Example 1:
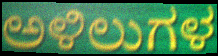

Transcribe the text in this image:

ಅಳಿಲುಗಳ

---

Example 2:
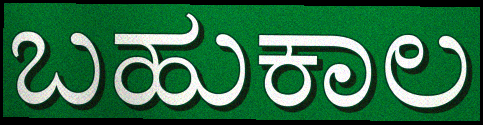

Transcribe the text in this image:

ಬಹುಕಾಲ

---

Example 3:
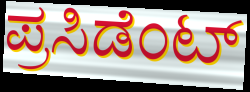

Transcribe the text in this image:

ಪ್ರಸಿಡೆಂಟ್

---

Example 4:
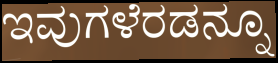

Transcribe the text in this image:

ಇವುಗಳೆರಡನ್ನೂ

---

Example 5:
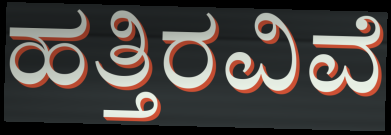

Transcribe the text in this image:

ಹತ್ತಿರವಿವೆ